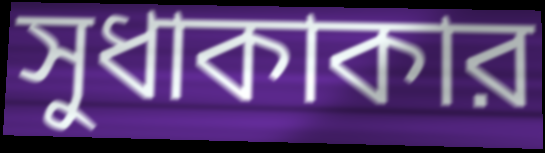
সুধাকাকার